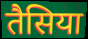
तैसिया